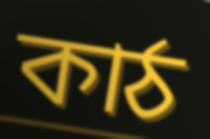
কাঠ